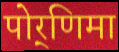
पोर्णिमा